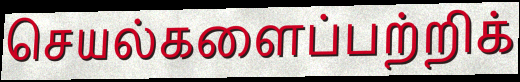
செயல்களைப்பற்றிக்